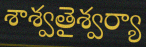
శాశ్వతైశ్వర్యా